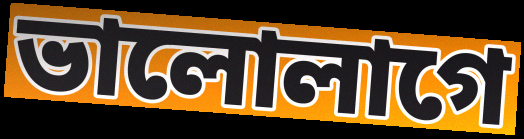
ভালোলাগে